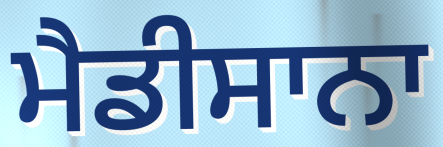
ਮੈਡੀਸਾਨਾ